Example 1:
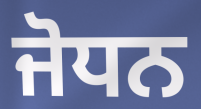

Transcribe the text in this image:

ਜੋਧਨ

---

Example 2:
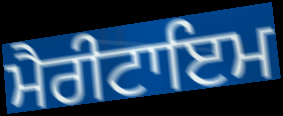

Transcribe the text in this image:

ਮੈਰੀਟਾਇਮ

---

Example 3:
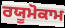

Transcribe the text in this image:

ਰਯੂਮੋਕਾਮ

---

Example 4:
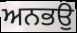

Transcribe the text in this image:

ਅਨਭਉ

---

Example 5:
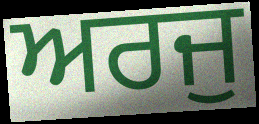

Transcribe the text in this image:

ਅਰਜੁ